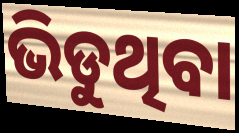
ଭିଡୁଥିବା